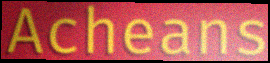
Acheans